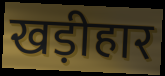
खड़ीहार